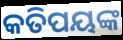
କତିପୟଙ୍କ